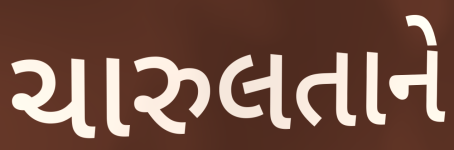
ચારુલતાને